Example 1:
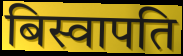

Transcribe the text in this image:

बिस्वापति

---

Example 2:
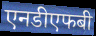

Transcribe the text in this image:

एनडीएफबी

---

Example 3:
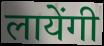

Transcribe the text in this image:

लायेंगी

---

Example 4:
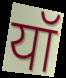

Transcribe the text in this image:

यॉ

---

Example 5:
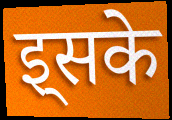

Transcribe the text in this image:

इ्सके